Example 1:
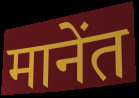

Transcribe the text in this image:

मानेंत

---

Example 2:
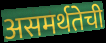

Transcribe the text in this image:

असमर्थतेची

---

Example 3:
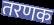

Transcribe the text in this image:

तरणक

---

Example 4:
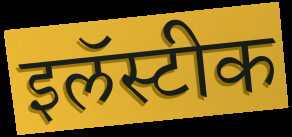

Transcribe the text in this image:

इलॅस्टीक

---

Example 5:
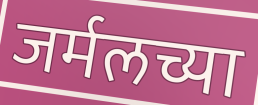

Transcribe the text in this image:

जर्मलच्या